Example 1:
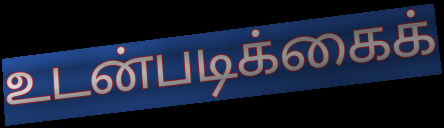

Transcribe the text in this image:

உடன்படிக்கைக்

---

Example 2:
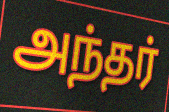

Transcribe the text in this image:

அந்தர்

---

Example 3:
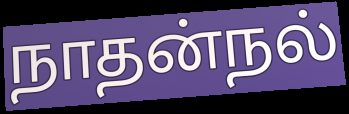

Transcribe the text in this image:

நாதன்நல்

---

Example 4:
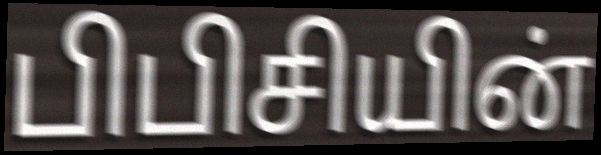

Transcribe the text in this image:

பிபிசியின்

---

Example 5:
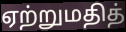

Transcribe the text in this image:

ஏற்றுமதித்